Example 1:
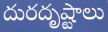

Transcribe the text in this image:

దురదృష్టాలు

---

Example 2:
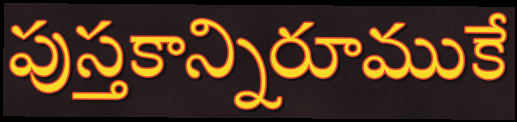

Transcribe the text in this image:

పుస్తకాన్నిరూముకే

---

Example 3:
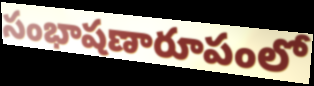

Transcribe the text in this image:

సంభాషణారూపంలో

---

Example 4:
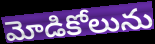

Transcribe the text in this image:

మోడికోలును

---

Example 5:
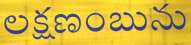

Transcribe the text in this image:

లక్షణంబును